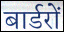
बार्डरों